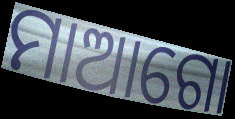
ମାଆଗୋ